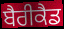
ਬੈਰੀਕੈਡ